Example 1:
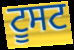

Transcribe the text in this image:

ਟੂਸਟ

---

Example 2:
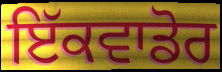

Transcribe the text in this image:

ਇੱਕਵਾਡੋਰ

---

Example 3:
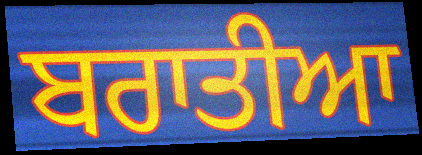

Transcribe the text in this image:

ਬਰਾਤੀਆ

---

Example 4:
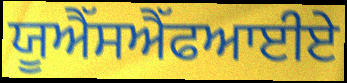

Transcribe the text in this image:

ਯੂਐੱਸਐੱਫਆਈਏ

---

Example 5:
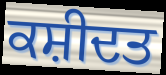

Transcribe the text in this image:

ਕਸ਼ੀਦਤ